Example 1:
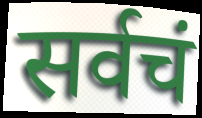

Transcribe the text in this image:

सर्वचं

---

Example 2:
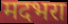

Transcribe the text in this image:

मदभरा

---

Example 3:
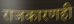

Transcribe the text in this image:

राजकारणही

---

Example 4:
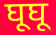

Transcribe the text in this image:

घूघू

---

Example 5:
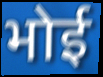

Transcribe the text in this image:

भोई